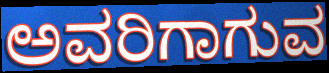
ಅವರಿಗಾಗುವ